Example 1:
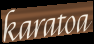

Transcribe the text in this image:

karatoa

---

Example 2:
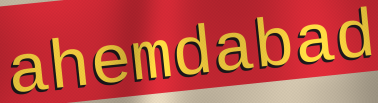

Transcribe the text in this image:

ahemdabad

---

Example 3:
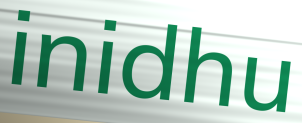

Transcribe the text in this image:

inidhu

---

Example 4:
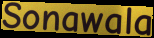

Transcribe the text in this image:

Sonawala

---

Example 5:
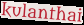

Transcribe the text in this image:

kulanthai